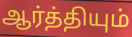
ஆர்த்தியும்